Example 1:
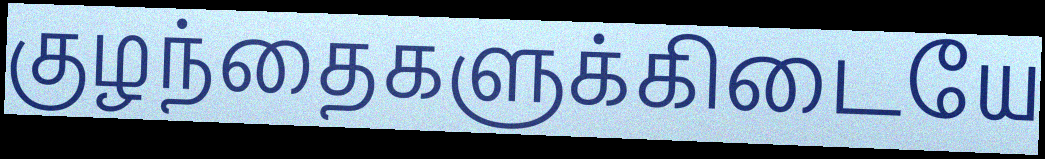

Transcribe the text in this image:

குழந்தைகளுக்கிடையே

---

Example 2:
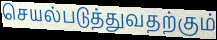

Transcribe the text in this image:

செயல்படுத்துவதற்கும்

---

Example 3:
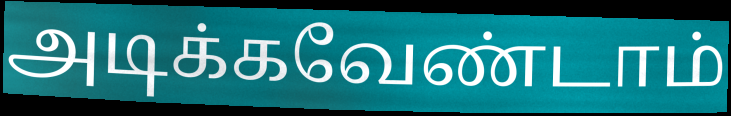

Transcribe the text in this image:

அடிக்கவேண்டாம்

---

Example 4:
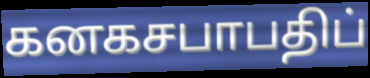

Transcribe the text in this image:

கனகசபாபதிப்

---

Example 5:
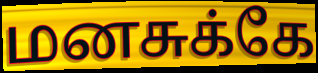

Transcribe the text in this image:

மனசுக்கே